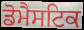
ਡੋਮੈਸਟਿਕ